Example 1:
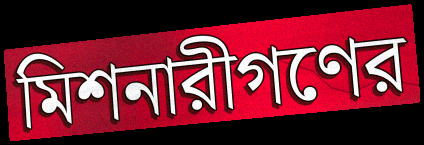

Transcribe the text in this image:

মিশনারীগণের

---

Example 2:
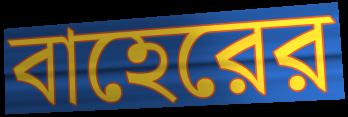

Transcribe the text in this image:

বাহেরের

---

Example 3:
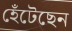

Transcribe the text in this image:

হেঁটেছেন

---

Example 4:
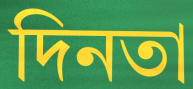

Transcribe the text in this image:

দিনতা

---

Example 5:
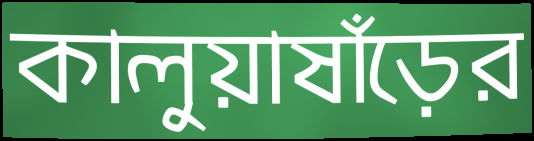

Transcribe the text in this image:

কালুয়াষাঁড়ের